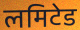
लमिटेड